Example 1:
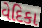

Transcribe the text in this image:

વેદિકા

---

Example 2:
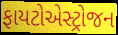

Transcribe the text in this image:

ફાયટોએસ્ટ્રોજન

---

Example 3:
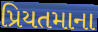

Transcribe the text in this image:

પ્રિયતમાના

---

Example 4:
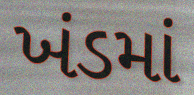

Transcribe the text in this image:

ખંડમાં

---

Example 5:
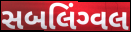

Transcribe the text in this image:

સબલિંગ્વલ